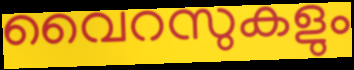
വൈറസുകളും